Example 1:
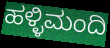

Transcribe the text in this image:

ಹಳ್ಳಿಮಂದಿ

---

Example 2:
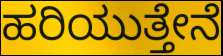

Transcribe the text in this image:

ಹರಿಯುತ್ತೇನೆ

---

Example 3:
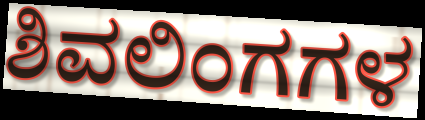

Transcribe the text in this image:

ಶಿವಲಿಂಗಗಳ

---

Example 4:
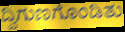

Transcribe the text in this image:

ದ್ವಿಗುಣಗೊಂಡಿತು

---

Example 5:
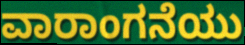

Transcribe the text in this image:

ವಾರಾಂಗನೆಯು